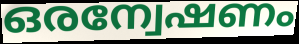
ഒരന്വേഷണം